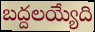
బద్దలయ్యేది